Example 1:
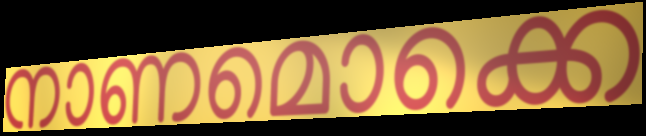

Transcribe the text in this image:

നാണമൊക്കെ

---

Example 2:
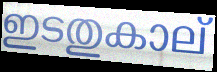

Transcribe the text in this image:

ഇടതുകാല്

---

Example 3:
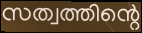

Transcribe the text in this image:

സത്വത്തിന്റെ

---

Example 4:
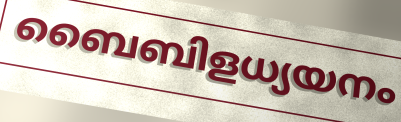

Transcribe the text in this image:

ബൈബിളധ്യയനം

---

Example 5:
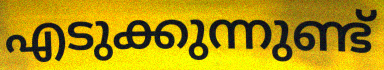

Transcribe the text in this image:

എടുക്കുന്നുണ്ട്